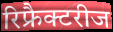
रिफ्रैक्टरीज